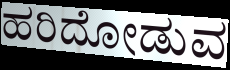
ಹರಿದೋಡುವ